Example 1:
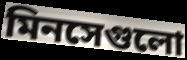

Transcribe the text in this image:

মিনসেগুলো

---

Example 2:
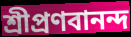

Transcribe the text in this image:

শ্রীপ্রণবানন্দ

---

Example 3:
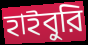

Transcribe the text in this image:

হাইবুরি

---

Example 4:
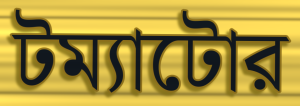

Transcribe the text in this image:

টম্যাটোর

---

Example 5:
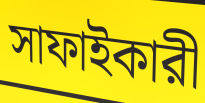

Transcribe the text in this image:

সাফাইকারী